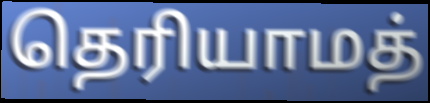
தெரியாமத்